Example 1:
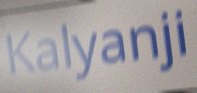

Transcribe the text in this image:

Kalyanji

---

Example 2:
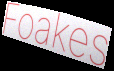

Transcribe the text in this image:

Foakes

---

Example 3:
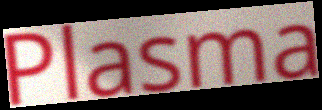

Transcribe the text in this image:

Plasma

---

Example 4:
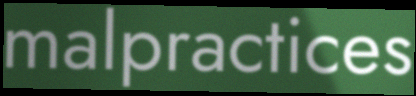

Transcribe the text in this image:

malpractices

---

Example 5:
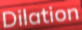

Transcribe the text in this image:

Dilation